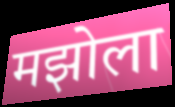
मझोला